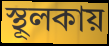
স্থূলকায়